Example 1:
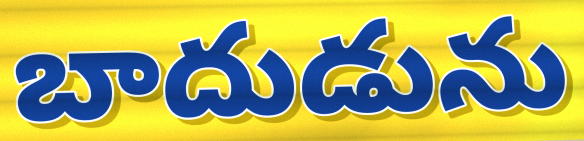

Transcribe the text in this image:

బాదుడును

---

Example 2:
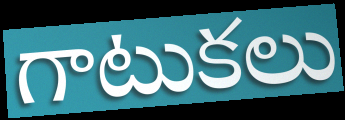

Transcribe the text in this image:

గాటుకలు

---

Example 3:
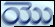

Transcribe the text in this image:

యొ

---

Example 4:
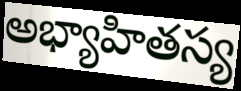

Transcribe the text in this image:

అభ్యాహితస్య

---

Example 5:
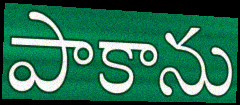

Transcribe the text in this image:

పాకాను